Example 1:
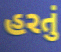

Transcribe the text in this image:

હરતું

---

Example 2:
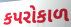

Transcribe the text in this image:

કપરોકાળ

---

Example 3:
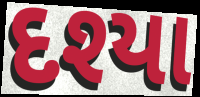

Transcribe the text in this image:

દશ્યા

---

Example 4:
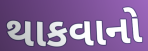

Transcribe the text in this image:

થાકવાનો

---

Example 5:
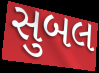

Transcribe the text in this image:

સુબલ